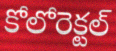
కోలోరెక్టల్